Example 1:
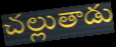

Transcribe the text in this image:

చల్లుతాడు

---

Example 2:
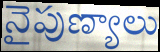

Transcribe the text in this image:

నైపుణ్యాలు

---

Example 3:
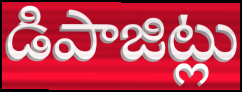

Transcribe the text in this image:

డిపాజిట్లు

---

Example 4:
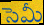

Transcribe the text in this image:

సెమీ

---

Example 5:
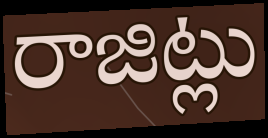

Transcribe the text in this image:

రాజిట్లు